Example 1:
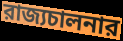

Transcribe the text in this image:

রাজ্যচালনার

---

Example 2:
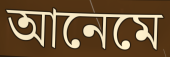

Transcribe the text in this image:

আনেমে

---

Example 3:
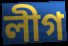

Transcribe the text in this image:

লীগ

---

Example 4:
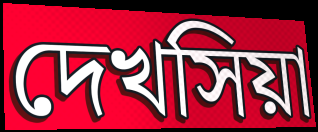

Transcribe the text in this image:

দেখসিয়া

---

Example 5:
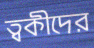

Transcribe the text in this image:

ত্বকীদের